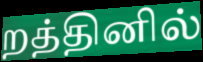
றத்தினில்